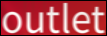
outlet